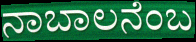
ನಾಬಾಲನೆಂಬ